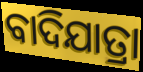
ବାଦିଯାତ୍ରା